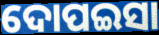
ଦୋପଇସା